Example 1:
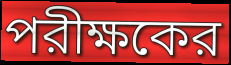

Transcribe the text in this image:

পরীক্ষকের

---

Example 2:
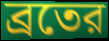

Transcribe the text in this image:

ব্রতের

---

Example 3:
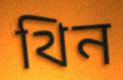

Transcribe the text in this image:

থিন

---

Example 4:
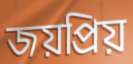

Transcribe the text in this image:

জয়প্রিয়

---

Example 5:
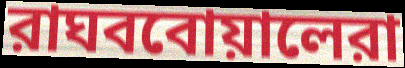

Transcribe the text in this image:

রাঘববোয়ালেরা